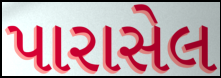
પારાસેલ